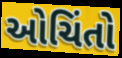
ઓચિંતો